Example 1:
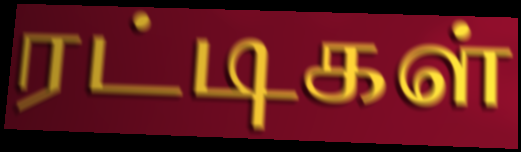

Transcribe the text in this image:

ரட்டிகள்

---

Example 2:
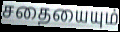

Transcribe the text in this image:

சதையையும்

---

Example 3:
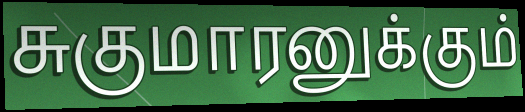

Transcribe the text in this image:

சுகுமாரனுக்கும்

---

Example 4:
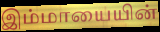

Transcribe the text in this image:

இம்மாயையின்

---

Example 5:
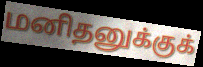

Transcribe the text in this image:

மனிதனுக்குக்